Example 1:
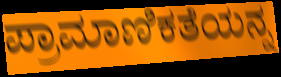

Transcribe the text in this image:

ಪ್ರಾಮಾಣಿಕತೆಯನ್ನ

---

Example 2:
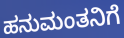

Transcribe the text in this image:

ಹನುಮಂತನಿಗೆ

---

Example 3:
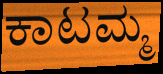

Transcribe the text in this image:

ಕಾಟಮ್ಮ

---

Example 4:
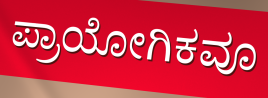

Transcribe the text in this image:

ಪ್ರಾಯೋಗಿಕವೂ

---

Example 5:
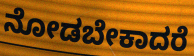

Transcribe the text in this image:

ನೋಡಬೇಕಾದರೆ